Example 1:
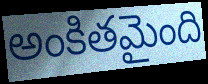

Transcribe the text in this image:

అంకితమైంది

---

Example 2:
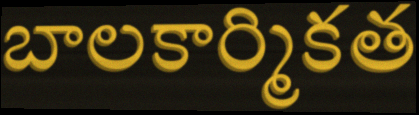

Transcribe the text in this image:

బాలకార్మికత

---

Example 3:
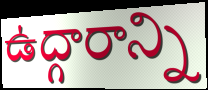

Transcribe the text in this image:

ఉద్గారాన్ని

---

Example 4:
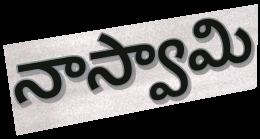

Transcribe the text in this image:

నాస్వామి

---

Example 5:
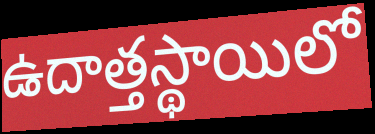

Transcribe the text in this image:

ఉదాత్తస్థాయిలో